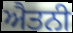
ਐਤਨੀ